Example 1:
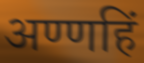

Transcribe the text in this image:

अण्णहिं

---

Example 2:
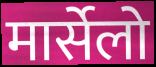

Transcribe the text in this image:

मार्सेलो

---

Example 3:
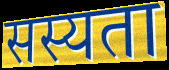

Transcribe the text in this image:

सस्यता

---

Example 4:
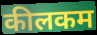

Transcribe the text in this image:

कीलकम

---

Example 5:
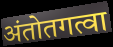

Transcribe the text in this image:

अंतोतगत्वा